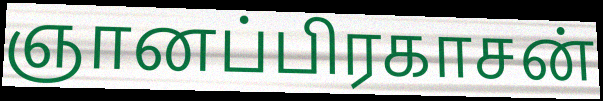
ஞானப்பிரகாசன்